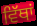
ਵਿੱਥਾਂ